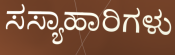
ಸಸ್ಯಾಹಾರಿಗಳು